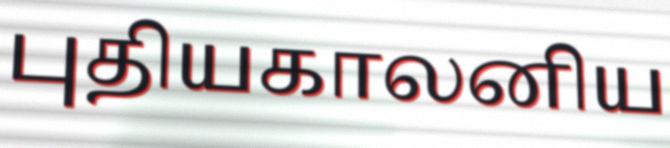
புதியகாலனிய